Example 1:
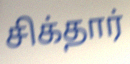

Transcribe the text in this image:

சிக்தார்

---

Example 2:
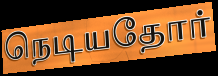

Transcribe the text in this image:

நெடியதோர்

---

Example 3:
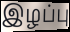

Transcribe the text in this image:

இழப்பு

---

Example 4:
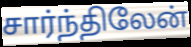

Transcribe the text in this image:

சார்ந்திலேன்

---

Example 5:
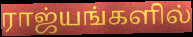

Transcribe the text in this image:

ராஜ்யங்களில்